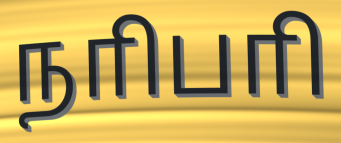
நரிபரி